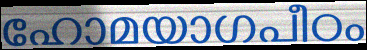
ഹോമയാഗപീഠം